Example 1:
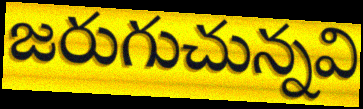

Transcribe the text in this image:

జరుగుచున్నవి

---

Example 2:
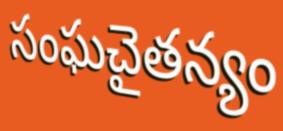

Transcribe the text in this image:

సంఘచైతన్యం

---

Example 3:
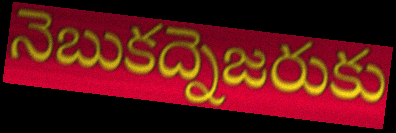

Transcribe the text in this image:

నెబుకద్నెజరుకు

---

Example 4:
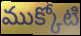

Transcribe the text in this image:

ముక్కోటి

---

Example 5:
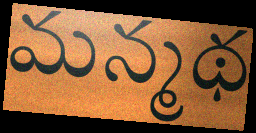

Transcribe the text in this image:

మన్మథ